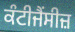
ਕੰਟੀਜੈਂਸੀਜ਼